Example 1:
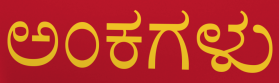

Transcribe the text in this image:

ಅಂಕಗಳು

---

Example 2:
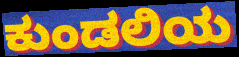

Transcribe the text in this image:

ಕುಂಡಲಿಯ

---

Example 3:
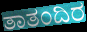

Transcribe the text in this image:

ತಾತಂದಿರ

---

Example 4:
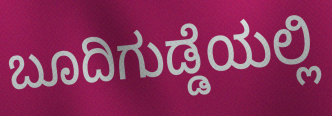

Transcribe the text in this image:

ಬೂದಿಗುಡ್ಡೆಯಲ್ಲಿ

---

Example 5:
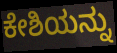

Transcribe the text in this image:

ಕೇಶಿಯನ್ನು